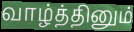
வாழ்த்தினும்